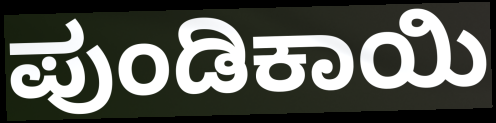
ಪುಂಡಿಕಾಯಿ